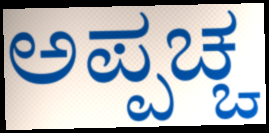
ಅಪ್ಪಚ್ಚ